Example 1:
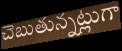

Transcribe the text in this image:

చెబుతున్నట్లుగా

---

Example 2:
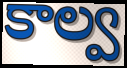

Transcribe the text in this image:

కాల్వ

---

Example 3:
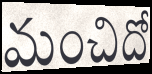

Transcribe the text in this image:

మంచిదో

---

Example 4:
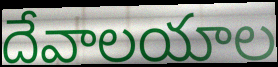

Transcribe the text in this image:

దేవాలయాల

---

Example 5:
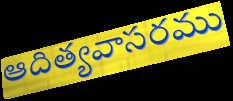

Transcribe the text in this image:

ఆదిత్యవాసరము